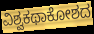
ವಿಶ್ವಕಥಾಕೋಶದ